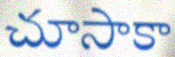
చూసాకా